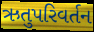
ઋતુપરિવર્તન